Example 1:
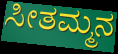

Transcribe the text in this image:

ಸೀತಮ್ಮನ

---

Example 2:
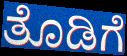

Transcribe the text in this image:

ತೊಡಿಗೆ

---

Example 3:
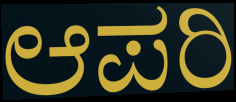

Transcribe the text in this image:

ಆಪರಿ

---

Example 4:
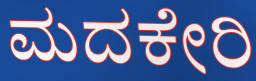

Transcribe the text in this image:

ಮದಕೇರಿ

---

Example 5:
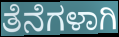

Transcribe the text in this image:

ತೆನೆಗಳಾಗಿ